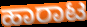
ಹಾರಾಟ